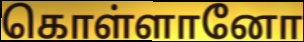
கொள்ளானோ